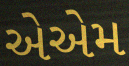
એએમ